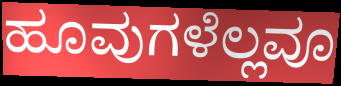
ಹೂವುಗಳೆಲ್ಲವೂ